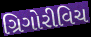
ગ્રિગોરીવિચ